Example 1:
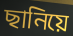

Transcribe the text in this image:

ছানিয়ে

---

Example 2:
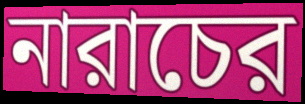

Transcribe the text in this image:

নারাচের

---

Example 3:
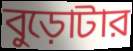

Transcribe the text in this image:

বুড়োটার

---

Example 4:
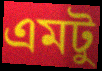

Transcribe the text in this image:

এমটু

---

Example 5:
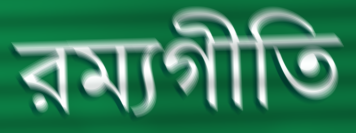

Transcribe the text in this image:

রম্যগীতি